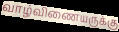
வாழ்விணையருக்கு